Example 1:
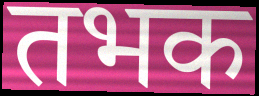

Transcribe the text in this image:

तभक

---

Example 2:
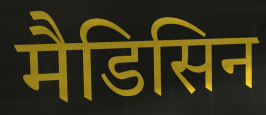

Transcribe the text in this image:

मैडिसिन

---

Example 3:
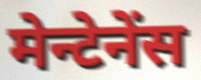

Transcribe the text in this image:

मेन्टेनेंस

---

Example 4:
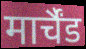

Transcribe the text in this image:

मार्चैंड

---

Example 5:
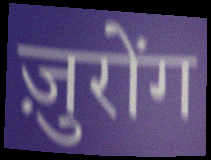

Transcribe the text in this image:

ज़ुरोंग